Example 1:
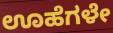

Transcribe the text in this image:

ಊಹೆಗಳೇ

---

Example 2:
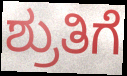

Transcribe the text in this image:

ಶ್ರುತಿಗೆ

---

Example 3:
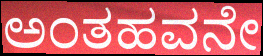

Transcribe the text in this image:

ಅಂತಹವನೇ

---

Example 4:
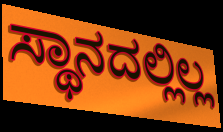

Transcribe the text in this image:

ಸ್ಥಾನದಲ್ಲಿಲ್ಲ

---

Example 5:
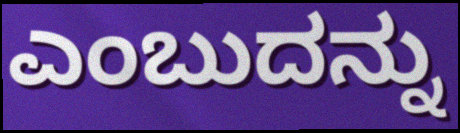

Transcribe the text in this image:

ಎಂಬುದನ್ನು